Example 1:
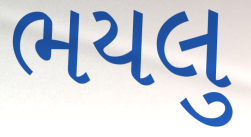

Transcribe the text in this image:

ભયલુ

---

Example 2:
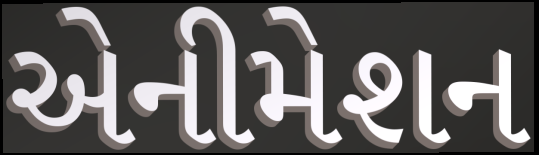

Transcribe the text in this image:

એનીમેશન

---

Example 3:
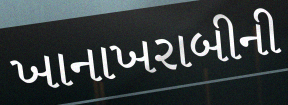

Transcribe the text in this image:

ખાનાખરાબીની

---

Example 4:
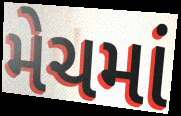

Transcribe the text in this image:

મેચમાં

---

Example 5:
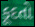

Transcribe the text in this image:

કૂદતો